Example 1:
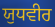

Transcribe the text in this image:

ਯੁਧਵੀਰ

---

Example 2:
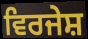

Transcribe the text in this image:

ਵਿਰਜੇਸ਼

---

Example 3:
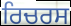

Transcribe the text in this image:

ਰਿਚਰਸ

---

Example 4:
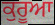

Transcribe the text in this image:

ਕੁਰੂਆ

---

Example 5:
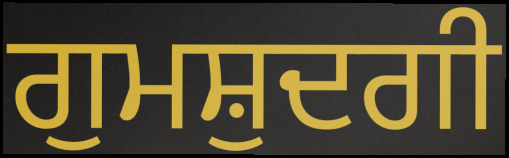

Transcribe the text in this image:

ਗੁਮਸ਼ੁਦਗੀ